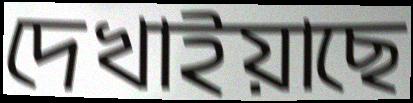
দেখাইয়াছে